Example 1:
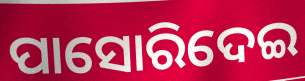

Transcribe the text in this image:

ପାସୋରିଦେଇ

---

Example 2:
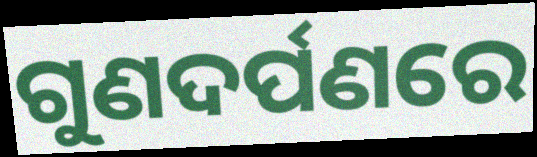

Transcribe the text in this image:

ଗୁଣଦର୍ପଣରେ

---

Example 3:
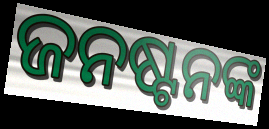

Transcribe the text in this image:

ଜନଷ୍ଟନଙ୍କ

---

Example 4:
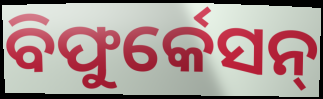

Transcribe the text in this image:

ବିଫୁର୍କେସନ୍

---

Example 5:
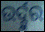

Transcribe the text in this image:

ଉର୍ଦ୍ଦୁର